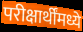
परीक्षार्थींमध्ये